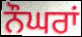
ਨੌਘਰਾਂ